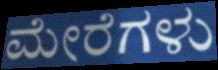
ಮೇರೆಗಳು